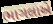
ભાગલાએ